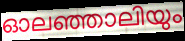
ഓലഞ്ഞാലിയും